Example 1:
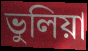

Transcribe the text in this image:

ভুলিয়া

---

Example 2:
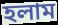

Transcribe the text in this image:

হলাম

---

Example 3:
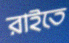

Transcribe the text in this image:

রাইতে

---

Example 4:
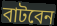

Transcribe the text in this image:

বাটবেন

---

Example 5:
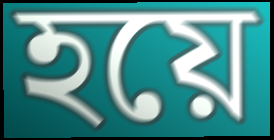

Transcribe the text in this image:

হয়ে